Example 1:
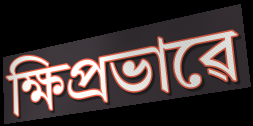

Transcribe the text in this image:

ক্ষিপ্ৰভাৱে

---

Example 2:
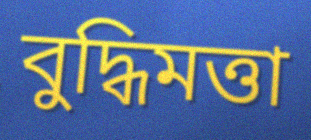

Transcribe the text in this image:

বুদ্ধিমত্তা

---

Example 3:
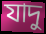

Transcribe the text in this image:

যাদু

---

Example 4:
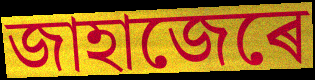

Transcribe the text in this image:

জাহাজেৰে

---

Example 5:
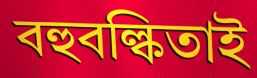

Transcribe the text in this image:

বহুবল্কিতাই